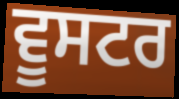
ਵੂਸਟਰ